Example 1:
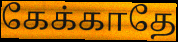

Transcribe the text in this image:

கேக்காதே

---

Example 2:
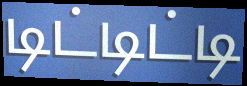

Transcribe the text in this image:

டிட்டிட்டி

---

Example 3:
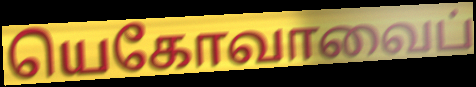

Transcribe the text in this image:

யெகோவாவைப்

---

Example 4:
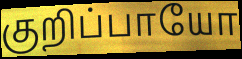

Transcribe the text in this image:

குறிப்பாயோ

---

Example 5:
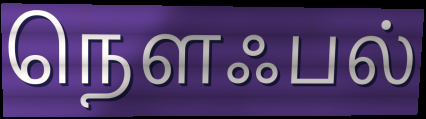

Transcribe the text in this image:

நௌஃபல்